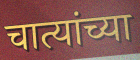
चात्यांच्या